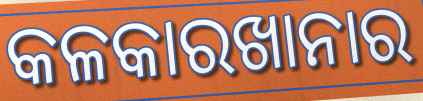
କଳକାରଖାନାର